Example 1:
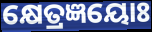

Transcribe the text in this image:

କ୍ଷେତ୍ରଜ୍ଞୟୋଃ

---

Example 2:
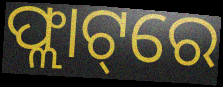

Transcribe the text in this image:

ଫ୍ଲାଟ୍‌ରେ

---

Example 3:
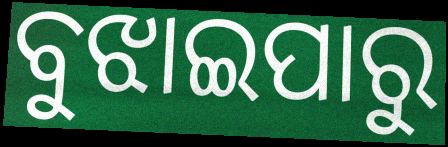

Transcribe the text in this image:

ବୁଝାଇପାରୁ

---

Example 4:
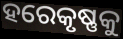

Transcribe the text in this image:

ହରେକୃଷ୍ଣକୁ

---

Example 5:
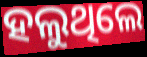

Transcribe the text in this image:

ହଲୁଥିଲେ